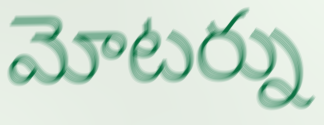
మోటర్ను